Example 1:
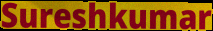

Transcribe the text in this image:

Sureshkumar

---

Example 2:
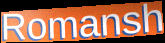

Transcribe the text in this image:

Romansh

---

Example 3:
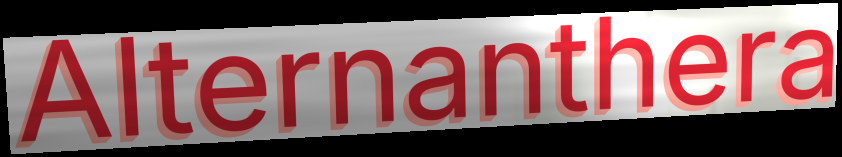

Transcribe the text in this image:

Alternanthera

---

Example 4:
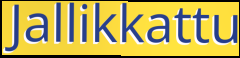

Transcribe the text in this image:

Jallikkattu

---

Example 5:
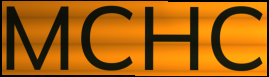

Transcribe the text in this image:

MCHC